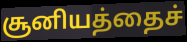
சூனியத்தைச்